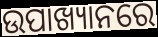
ଉପାଖ୍ୟାନରେ